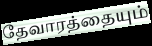
தேவாரத்தையும்